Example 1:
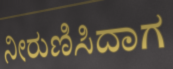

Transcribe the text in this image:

ನೀರುಣಿಸಿದಾಗ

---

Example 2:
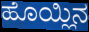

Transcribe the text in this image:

ಹೊಯ್ಲಿನ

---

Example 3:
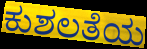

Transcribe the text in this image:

ಕುಶಲತೆಯ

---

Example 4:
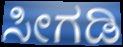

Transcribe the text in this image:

ಸೀಗಡಿ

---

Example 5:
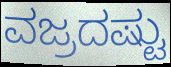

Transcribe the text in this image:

ವಜ್ರದಷ್ಟು